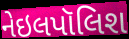
નેઇલપૉલિશ